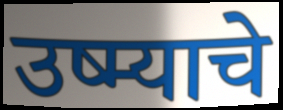
उष्म्याचे